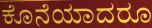
ಕೊನೆಯಾದರೂ